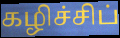
கழிச்சிப்